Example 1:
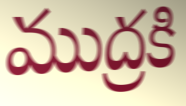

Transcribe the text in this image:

ముద్రకి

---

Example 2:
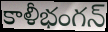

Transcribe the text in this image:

కాళీభంగన్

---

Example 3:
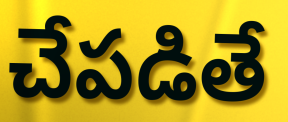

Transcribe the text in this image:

చేపడితే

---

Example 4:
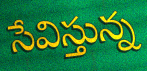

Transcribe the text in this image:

సేవిస్తున్న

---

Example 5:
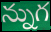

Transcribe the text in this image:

న్నుగ